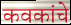
कवकांचे